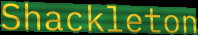
Shackleton